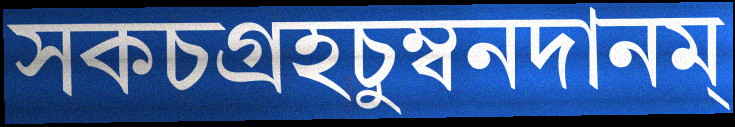
সকচগ্রহচুম্বনদানম্